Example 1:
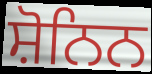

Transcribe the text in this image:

ਸ਼ੋਨਿਨ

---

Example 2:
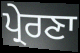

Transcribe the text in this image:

ਪ੍ਰੇਰਣਾ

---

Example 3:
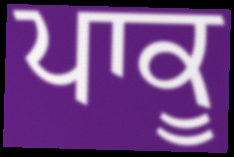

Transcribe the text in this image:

ਪਾਕੂ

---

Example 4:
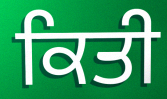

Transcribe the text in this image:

ਕਿਤੀ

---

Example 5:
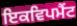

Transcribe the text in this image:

ਇਕਵਿਪਮੈਂਟ